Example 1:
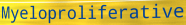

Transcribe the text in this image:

Myeloproliferative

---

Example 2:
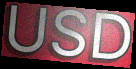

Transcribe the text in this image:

USD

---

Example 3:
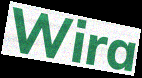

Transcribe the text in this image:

Wira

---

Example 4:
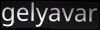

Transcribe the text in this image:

gelyavar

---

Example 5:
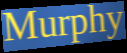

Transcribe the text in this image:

Murphy